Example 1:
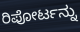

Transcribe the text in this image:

ರಿಪೋರ್ಟನ್ನು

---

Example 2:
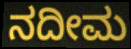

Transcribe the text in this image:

ನದೀಮ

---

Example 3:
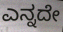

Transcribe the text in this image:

ಎನ್ನದೇ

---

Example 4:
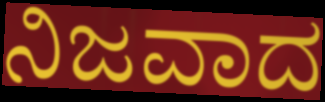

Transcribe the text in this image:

ನಿಜವಾದ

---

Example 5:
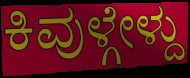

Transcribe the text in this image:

ಕಿವುಳ್ಗೇಳ್ದು